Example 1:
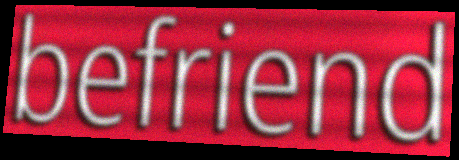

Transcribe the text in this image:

befriend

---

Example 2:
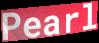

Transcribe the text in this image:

Pearl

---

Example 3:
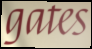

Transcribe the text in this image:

gates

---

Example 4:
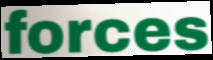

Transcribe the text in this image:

forces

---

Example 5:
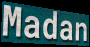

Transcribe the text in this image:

Madan